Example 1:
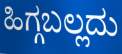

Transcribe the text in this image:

ಹಿಗ್ಗಬಲ್ಲದು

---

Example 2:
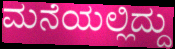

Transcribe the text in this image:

ಮನೆಯಲ್ಲಿದ್ದು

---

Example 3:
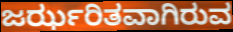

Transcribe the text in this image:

ಜರ್ಝರಿತವಾಗಿರುವ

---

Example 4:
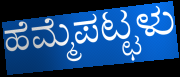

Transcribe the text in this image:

ಹೆಮ್ಮೆಪಟ್ಟಳು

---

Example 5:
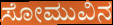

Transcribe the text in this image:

ಸೋಮುವಿನ